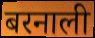
बरनाली